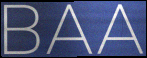
BAA